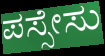
ಪಸ್ಸೇಸು